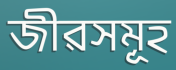
জীৱসমূহ